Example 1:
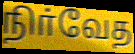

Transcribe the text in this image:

நிர்வேத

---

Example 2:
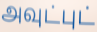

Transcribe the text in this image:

அவுட்புட்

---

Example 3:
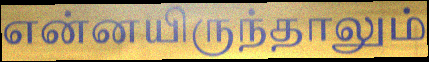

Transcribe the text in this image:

என்னயிருந்தாலும்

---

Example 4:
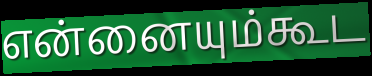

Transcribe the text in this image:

என்னையும்கூட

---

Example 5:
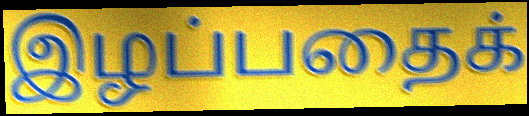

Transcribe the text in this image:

இழப்பதைக்